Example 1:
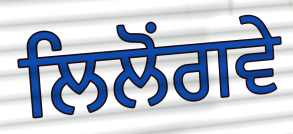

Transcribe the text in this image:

ਲਿਲੋਂਗਵੇ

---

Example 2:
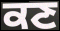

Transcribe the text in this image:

ਕਣ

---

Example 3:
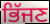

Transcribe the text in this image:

ਭਿੱਜਣ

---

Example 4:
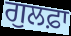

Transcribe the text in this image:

ਗੁਲਫ਼ਾ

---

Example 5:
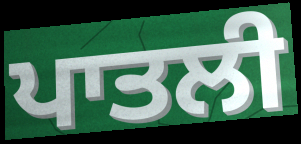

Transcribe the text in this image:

ਪਾਤਲੀ